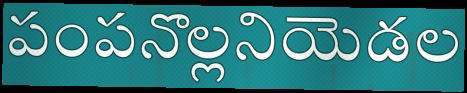
పంపనొల్లనియెడల